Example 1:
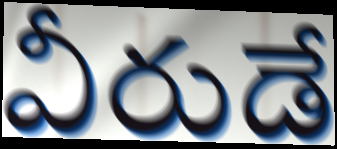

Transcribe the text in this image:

వీరుడే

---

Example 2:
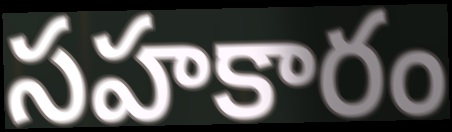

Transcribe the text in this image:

సహకారం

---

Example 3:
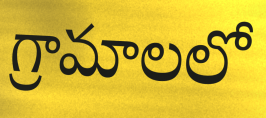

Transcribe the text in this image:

గ్రామాలలో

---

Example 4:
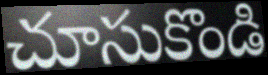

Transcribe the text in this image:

చూసుకొండి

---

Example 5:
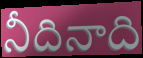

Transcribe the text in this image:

నీదినాది